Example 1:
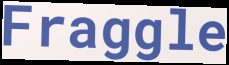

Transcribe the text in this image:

Fraggle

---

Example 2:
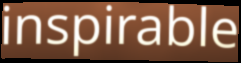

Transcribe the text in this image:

inspirable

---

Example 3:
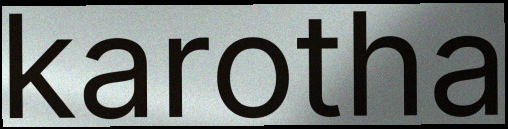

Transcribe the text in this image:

karotha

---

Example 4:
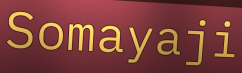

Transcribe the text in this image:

Somayaji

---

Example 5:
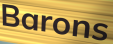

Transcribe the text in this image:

Barons